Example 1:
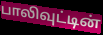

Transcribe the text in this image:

பாலிவுட்டின்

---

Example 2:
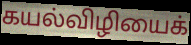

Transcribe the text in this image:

கயல்விழியைக்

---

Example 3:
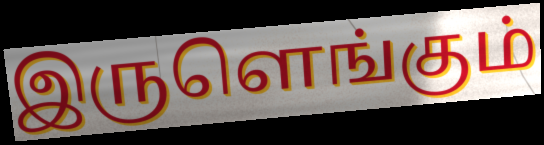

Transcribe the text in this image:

இருளெங்கும்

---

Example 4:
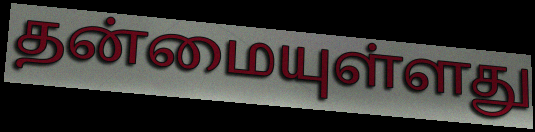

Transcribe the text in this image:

தன்மையுள்ளது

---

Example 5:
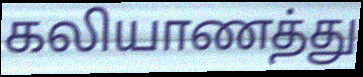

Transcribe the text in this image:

கலியாணத்து